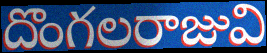
దొంగలరాజువి